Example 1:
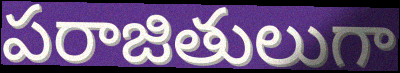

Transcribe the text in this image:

పరాజితులుగా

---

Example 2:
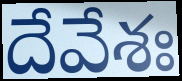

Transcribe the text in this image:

దేవేశః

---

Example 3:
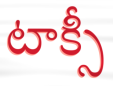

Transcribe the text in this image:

టాక్సీ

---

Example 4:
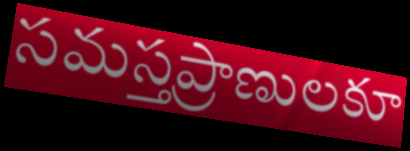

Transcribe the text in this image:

సమస్తప్రాణులకూ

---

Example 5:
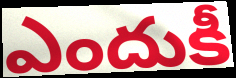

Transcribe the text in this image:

ఎందుకీ